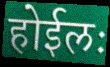
होईलः